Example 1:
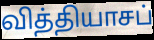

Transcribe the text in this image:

வித்தியாசப்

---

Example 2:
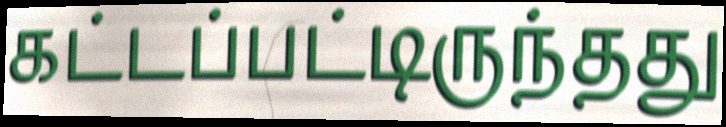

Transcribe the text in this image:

கட்டப்பட்டிருந்தது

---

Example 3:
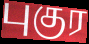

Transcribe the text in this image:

புகுர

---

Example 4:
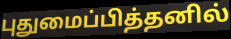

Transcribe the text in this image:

புதுமைப்பித்தனில்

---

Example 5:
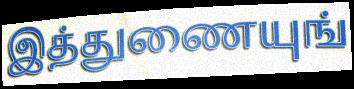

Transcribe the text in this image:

இத்துணையுங்